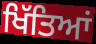
ਖਿੱਤਿਆਂ